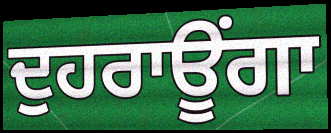
ਦੁਹਰਾਊਂਗਾ